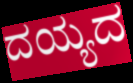
ದಯ್ಯದ